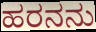
ಹರನನು